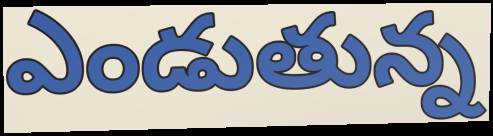
ఎండుతున్న